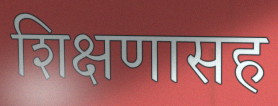
शिक्षणासह